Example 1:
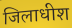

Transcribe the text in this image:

जिलाधीश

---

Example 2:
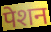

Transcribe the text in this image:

पेशन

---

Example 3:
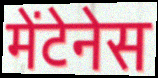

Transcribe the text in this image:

मेंटेनेस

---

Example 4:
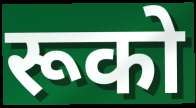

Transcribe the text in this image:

रूको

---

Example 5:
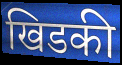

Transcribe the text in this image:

खिडकी